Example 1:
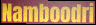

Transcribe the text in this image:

Namboodri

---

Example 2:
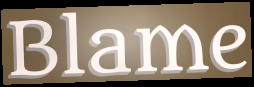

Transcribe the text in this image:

Blame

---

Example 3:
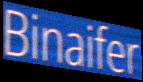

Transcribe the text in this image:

Binaifer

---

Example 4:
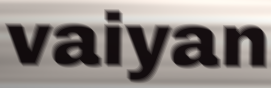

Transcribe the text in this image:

vaiyan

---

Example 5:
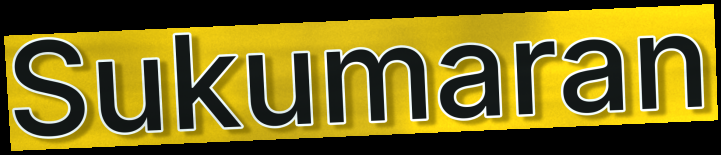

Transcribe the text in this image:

Sukumaran